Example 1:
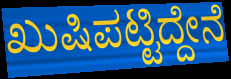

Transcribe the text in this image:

ಖುಷಿಪಟ್ಟಿದ್ದೇನೆ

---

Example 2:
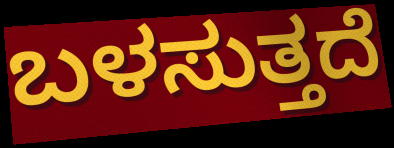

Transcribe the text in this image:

ಬಳಸುತ್ತದೆ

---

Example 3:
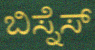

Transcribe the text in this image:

ಬಿಸ್ನೆಸ್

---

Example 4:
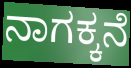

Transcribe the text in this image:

ನಾಗಕ್ಕನೆ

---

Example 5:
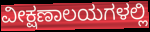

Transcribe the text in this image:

ವೀಕ್ಷಣಾಲಯಗಳಲ್ಲಿ